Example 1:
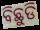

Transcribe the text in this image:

ବିଛୁଡି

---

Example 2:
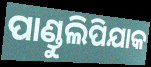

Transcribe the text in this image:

ପାଣ୍ଡୁଲିପିଯାକ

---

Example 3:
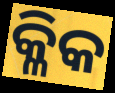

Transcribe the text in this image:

କ୍ଳିକ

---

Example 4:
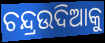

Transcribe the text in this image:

ଚନ୍ଦ୍ରଉଦିଆକୁ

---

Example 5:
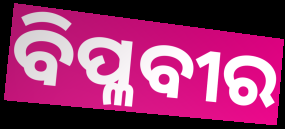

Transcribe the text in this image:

ବିପ୍ଳବୀର